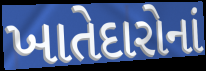
ખાતેદારોનાં